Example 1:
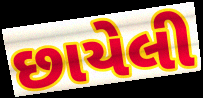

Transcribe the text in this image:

છાયેલી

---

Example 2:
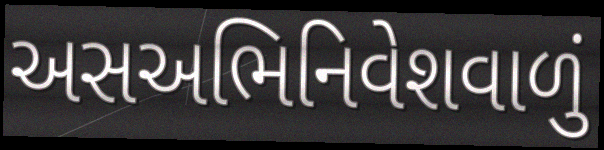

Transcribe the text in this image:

અસઅભિનિવેશવાળું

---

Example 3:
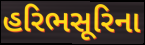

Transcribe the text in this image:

હરિભસૂરિના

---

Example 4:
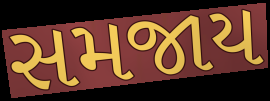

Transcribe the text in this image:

સમજાય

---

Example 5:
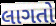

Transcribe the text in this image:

લાગતો